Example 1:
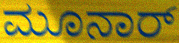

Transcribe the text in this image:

ಮೂನಾರ್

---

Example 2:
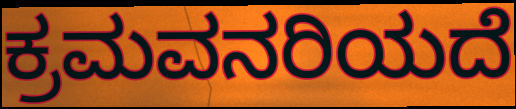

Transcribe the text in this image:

ಕ್ರಮವನರಿಯದೆ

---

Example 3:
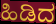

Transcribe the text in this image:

ಹಿಡಿದ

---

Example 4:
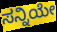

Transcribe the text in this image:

ಸನ್ನಿಯೇ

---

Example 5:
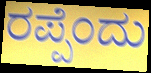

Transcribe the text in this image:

ರಪ್ಪೆಂದು